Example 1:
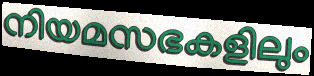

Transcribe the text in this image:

നിയമസഭകളിലും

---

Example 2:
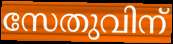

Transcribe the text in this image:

സേതുവിന്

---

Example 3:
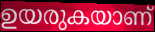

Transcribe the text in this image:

ഉയരുകയാണ്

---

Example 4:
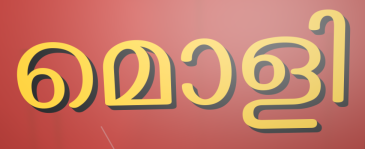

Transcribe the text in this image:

മൊളി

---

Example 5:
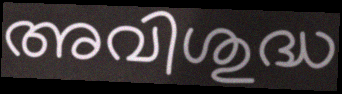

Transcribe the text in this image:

അവിശുദ്ധ